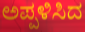
ಅಪ್ಪಳಿಸಿದ